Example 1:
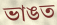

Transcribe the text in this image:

ভাঙত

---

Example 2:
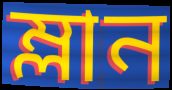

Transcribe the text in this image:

ম্লান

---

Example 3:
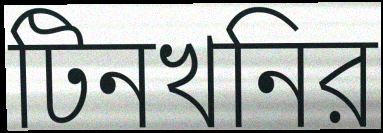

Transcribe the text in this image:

টিনখনির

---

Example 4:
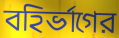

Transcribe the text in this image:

বহির্ভাগের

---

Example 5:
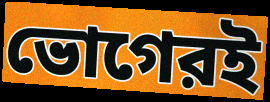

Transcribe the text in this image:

ভোগেরই